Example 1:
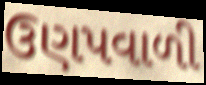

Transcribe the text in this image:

ઉણપવાળી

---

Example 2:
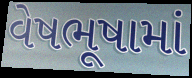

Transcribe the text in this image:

વેષભૂષામાં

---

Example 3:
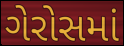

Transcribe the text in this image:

ગેરોસમાં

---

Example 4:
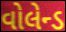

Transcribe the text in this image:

વોલેન્ડ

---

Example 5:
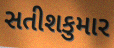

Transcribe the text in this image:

સતીશકુમાર